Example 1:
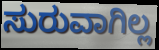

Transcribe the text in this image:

ಸುರುವಾಗಿಲ್ಲ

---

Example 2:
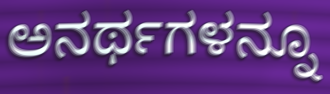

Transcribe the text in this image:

ಅನರ್ಥಗಳನ್ನೂ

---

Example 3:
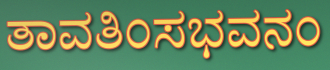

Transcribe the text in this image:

ತಾವತಿಂಸಭವನಂ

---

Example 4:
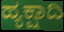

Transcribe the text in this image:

ಹ್ಯಕ್ಷಾದಿ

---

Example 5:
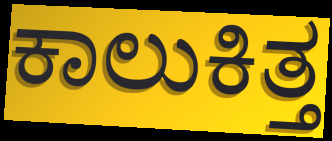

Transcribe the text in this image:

ಕಾಲುಕಿತ್ತ